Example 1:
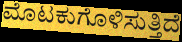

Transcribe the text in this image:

ಮೊಟಕುಗೊಳಿಸುತ್ತಿದೆ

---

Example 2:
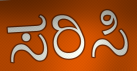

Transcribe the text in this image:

ಸರಿಸಿ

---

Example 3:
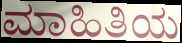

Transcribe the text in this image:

ಮಾಹಿತಿಯ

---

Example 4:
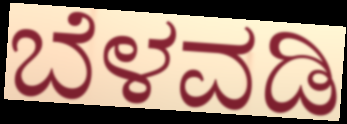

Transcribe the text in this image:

ಬೆಳವಡಿ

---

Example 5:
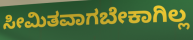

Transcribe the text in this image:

ಸೀಮಿತವಾಗಬೇಕಾಗಿಲ್ಲ